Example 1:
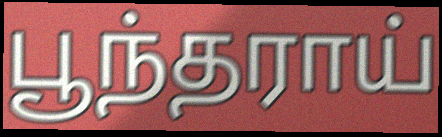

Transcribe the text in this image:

பூந்தராய்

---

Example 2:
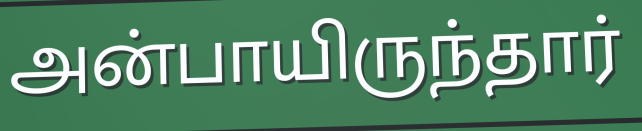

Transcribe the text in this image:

அன்பாயிருந்தார்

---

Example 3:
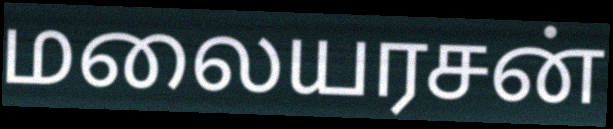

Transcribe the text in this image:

மலையரசன்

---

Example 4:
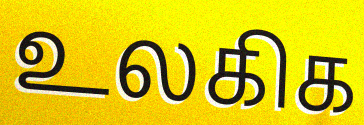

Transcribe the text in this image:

உலகிக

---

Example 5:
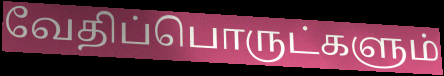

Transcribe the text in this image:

வேதிப்பொருட்களும்